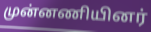
முன்னணியினர்